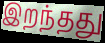
இறந்தது